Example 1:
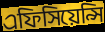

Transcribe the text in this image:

এফিসিয়েন্সি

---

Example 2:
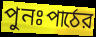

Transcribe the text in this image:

পুনঃপাঠের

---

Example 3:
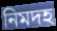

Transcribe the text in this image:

নিমদহ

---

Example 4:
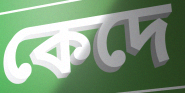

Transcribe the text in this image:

কেদে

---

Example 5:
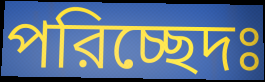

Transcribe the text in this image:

পরিচ্ছেদঃ